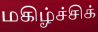
மகிழ்ச்சிக்